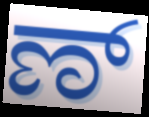
ಣ್